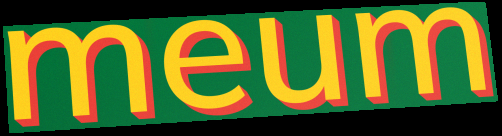
meum